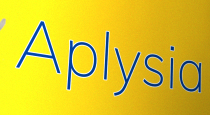
Aplysia